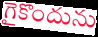
గైకొందును